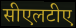
सीएलटीए